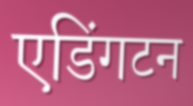
एडिंगटन